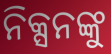
ନିକ୍ସନଙ୍କୁ